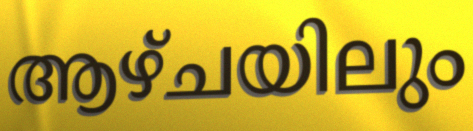
ആഴ്ചയിലും